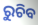
ରୁଚିବ